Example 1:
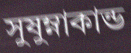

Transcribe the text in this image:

সুষুম্নাকান্ড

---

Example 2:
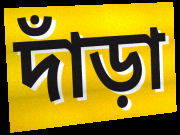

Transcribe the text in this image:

দাঁড়া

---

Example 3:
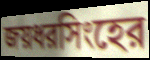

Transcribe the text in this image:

জয়ধরসিংহের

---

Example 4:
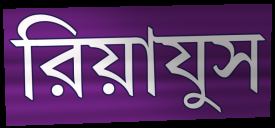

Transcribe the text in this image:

রিয়াযুস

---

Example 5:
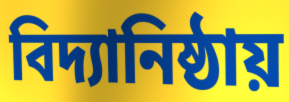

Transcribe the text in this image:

বিদ্যানিষ্ঠায়